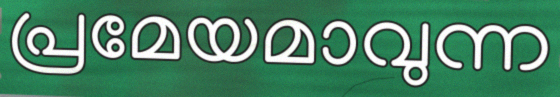
പ്രമേയമാവുന്ന